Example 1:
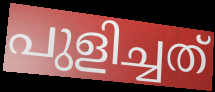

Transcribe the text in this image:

പുളിച്ചത്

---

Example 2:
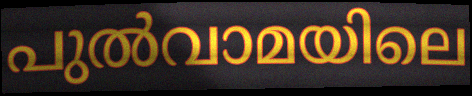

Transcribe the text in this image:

പുൽവാമയിലെ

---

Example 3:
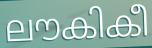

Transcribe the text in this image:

ലൗകികീ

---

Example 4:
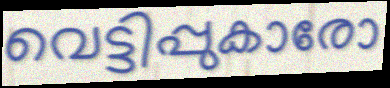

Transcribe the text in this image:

വെട്ടിപ്പുകാരോ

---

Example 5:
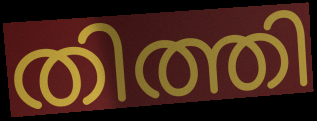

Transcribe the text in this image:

തിത്തി